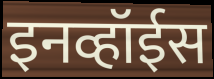
इनव्हॉईस